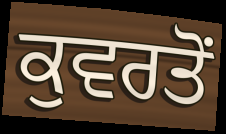
ਕੁਵਰਤੋਂ